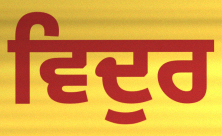
ਵਿਦੁਰ